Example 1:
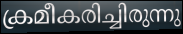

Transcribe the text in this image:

ക്രമീകരിച്ചിരുന്നു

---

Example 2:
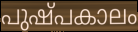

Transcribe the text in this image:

പുഷ്പകാലം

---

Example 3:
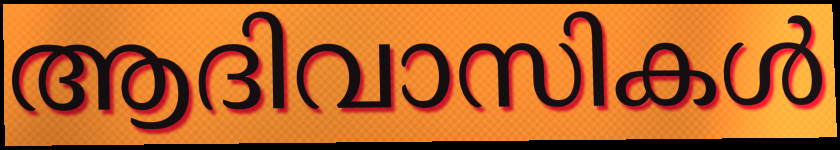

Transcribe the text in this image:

ആദിവാസികൾ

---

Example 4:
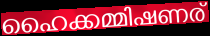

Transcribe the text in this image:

ഹൈക്കമ്മിഷണര്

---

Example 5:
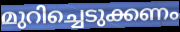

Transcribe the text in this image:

മുറിച്ചെടുക്കണം